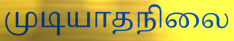
முடியாதநிலை